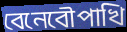
বেনেবৌপাখি